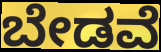
ಬೇಡವೆ